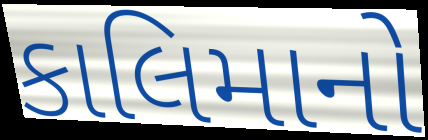
કાલિમાનો